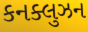
કનક્લુઝન